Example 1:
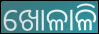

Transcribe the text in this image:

ଖୋଳାଳି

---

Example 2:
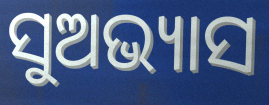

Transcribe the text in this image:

ସୁଅଭ୍ୟାସ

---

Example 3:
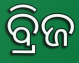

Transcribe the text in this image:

ବ୍ରିଜ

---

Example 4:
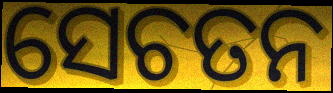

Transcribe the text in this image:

ସେଚତନ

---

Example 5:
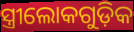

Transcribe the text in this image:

ସ୍ତ୍ରୀଲୋକଗୁଡ଼ିକ